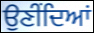
ਉਣੀਂਦਿਆਂ